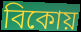
বিকোয়